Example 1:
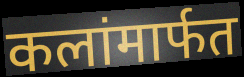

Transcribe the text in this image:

कलांमार्फत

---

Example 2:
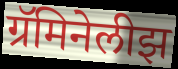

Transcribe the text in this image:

ग्रॅमिनेलीझ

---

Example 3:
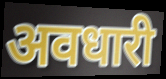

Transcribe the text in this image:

अवधारी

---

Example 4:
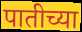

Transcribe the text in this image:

पातीच्या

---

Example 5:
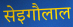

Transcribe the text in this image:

सेइगौलाल